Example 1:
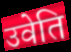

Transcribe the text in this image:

उवेति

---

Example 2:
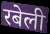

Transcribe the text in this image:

रबेली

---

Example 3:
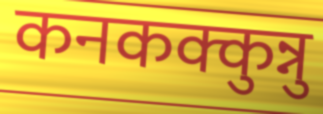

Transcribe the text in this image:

कनकक्कुन्नु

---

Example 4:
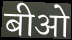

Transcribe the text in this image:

बीओ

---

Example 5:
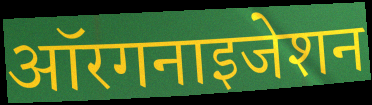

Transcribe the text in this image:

ऑरगनाइजेशन